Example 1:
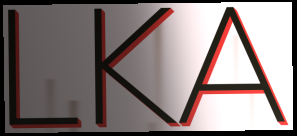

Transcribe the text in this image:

LKA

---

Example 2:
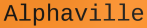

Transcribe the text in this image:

Alphaville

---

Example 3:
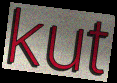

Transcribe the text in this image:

kut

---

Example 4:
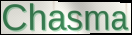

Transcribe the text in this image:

Chasma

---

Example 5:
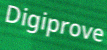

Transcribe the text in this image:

Digiprove